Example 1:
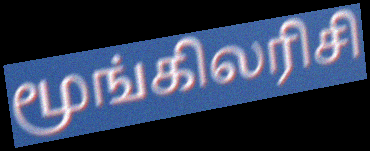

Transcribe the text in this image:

மூங்கிலரிசி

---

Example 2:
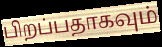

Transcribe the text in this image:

பிறப்பதாகவும்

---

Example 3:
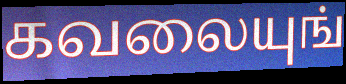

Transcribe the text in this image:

கவலையுங்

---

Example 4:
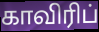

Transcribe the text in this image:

காவிரிப்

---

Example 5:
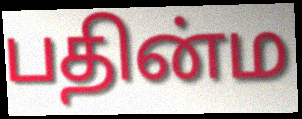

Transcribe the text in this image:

பதின்ம